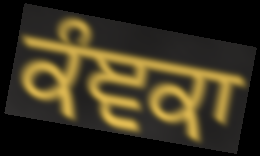
ਕੰਞਕਾ